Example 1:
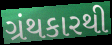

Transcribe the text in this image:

ગ્રંથકારથી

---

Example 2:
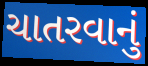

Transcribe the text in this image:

ચાતરવાનું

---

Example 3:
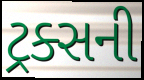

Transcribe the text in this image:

ટ્રક્સની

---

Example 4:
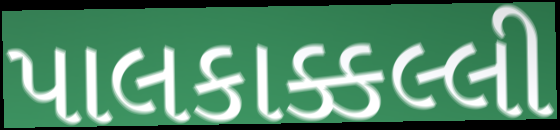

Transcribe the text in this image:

પાલકાક્કલ્લી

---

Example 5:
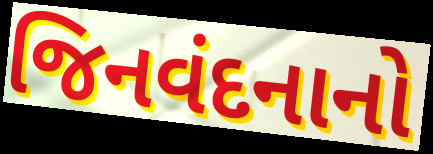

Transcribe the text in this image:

જિનવંદનાનો